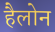
हैलोन